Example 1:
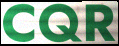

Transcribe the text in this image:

CQR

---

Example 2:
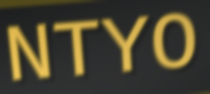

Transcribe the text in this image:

NTYO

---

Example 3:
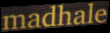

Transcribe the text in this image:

madhale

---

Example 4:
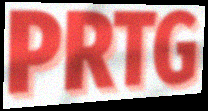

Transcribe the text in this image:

PRTG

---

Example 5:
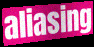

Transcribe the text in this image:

aliasing